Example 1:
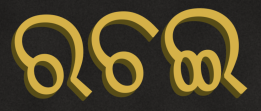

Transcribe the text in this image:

ରଚଇ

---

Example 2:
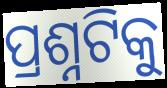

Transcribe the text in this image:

ପ୍ରଶ୍ନଟିକୁ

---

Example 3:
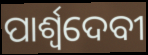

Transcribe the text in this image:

ପାର୍ଶ୍ୱଦେବୀ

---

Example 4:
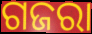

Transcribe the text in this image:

ଗଜରା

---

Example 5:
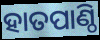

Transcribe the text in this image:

ହାତପାଣ୍ଠି